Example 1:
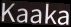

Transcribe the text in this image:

Kaaka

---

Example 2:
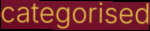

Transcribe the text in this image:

categorised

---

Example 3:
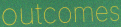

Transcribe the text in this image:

outcomes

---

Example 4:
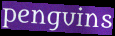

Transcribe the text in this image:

penguins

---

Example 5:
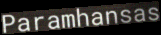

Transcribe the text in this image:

Paramhansas